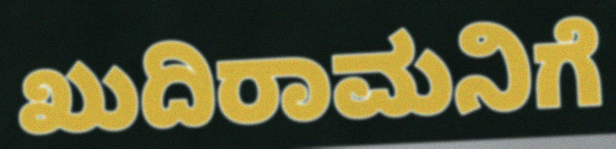
ಖುದಿರಾಮನಿಗೆ